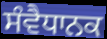
ਸੰਵੈਧਾਨਕ